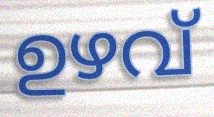
ഉഴവ്